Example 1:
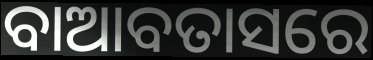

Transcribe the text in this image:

ବାଆବତାସରେ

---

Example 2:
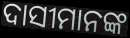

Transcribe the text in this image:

ଦାସୀମାନଙ୍କ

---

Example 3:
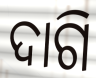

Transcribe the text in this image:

ଦାଗି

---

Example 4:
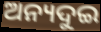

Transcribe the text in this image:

ଅନ୍ୟଦୁଇ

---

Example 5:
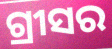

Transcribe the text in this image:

ଗ୍ରୀସର